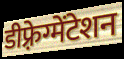
डीफ़्रेग्मेंटेशन